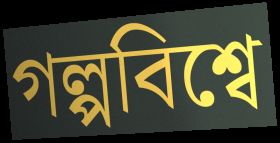
গল্পবিশ্বে